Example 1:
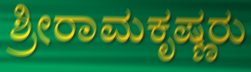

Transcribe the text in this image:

ಶ್ರೀರಾಮಕೃಷ್ಣರು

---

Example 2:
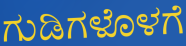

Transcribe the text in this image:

ಗುಡಿಗಳೊಳಗೆ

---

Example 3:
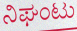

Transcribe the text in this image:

ನಿಘಂಟು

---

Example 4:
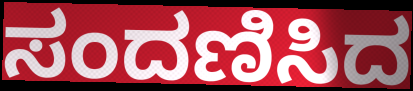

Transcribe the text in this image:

ಸಂದಣಿಸಿದ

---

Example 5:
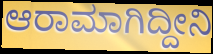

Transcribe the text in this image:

ಆರಾಮಾಗಿದ್ದೀನಿ